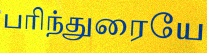
பரிந்துரையே